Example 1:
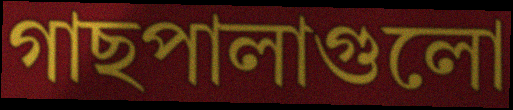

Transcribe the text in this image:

গাছপালাগুলো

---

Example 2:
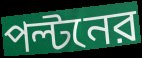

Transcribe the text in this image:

পল্টনের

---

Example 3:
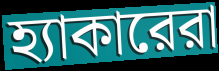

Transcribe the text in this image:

হ্যাকারেরা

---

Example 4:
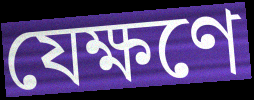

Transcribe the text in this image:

যেক্ষণে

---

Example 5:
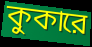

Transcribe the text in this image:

কুকারে